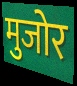
मुजोर